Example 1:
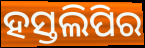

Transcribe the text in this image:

ହସ୍ତଲିପିର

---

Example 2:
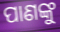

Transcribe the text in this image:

ପାଣଙ୍କୁ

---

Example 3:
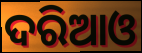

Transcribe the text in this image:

ଦରିଆଓ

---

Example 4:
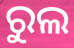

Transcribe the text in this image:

ରୁଲ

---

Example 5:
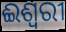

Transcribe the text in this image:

ଈଶ୍ଵରୀ